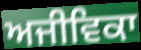
ਅਜੀਵਿਕਾ